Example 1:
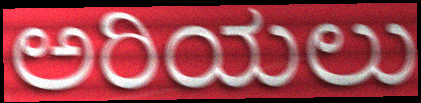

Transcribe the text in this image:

ಅರಿಯಲು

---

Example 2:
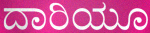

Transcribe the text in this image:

ದಾರಿಯೂ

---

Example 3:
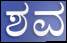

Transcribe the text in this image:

ಶವ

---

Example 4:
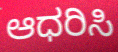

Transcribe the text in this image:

ಆಧರಿಸಿ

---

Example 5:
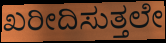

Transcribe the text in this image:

ಖರೀದಿಸುತ್ತಲೇ